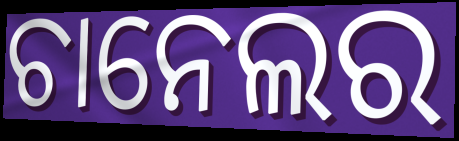
ଚାନେଲର